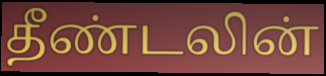
தீண்டலின்